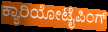
ಕ್ಯಾರಿಯೋಟೈಪಿಂಗ್